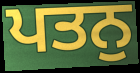
ਪਤਨੁ